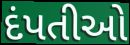
દંપતીઓ